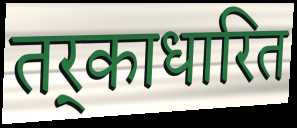
तर्काधारित